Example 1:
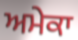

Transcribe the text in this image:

ਅਮੇਕਾ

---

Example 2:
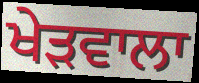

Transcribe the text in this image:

ਖੇੜਵਾਲਾ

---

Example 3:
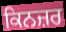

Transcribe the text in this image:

ਕਿਨਜ਼ਰ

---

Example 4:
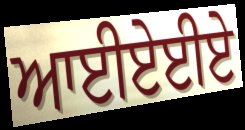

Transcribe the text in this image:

ਆਈਏਈਏ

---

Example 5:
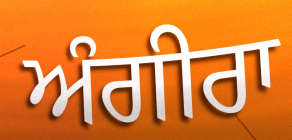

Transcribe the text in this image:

ਅੰਗੀਰਾ